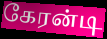
கேரன்டி